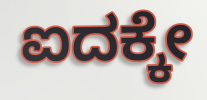
ಐದಕ್ಕೇ